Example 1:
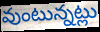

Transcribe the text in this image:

వుంటున్నట్లు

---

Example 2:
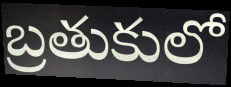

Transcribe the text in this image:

బ్రతుకులో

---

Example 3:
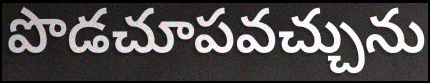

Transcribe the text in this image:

పొడచూపవచ్చును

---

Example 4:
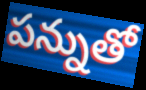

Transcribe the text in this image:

పన్నుతో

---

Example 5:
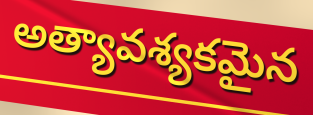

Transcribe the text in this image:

అత్యావశ్యకమైన